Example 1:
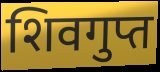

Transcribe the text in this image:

शिवगुप्त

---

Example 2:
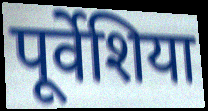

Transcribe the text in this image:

पूर्वेशिया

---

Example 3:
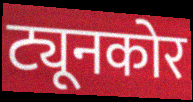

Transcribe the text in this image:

ट्यूनकोर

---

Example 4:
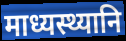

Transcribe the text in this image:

माध्यस्थ्यानि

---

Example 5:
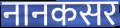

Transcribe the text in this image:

नानकसर